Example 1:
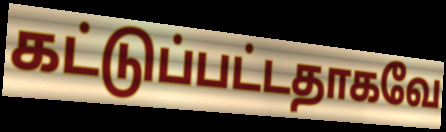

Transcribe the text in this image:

கட்டுப்பட்டதாகவே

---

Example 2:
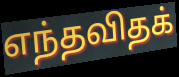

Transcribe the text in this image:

எந்தவிதக்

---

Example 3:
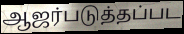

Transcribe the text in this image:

ஆஜர்படுத்தப்பட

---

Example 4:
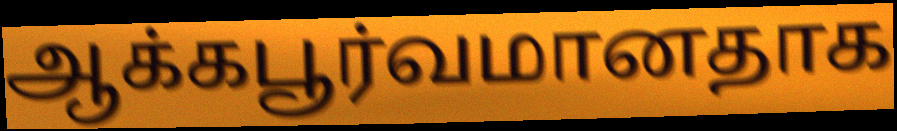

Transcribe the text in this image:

ஆக்கபூர்வமானதாக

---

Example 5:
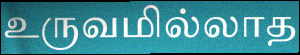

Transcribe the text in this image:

உருவமில்லாத